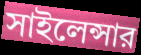
সাইলেন্সার